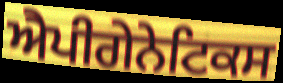
ਐਪੀਗੇਨੇਟਿਕਸ